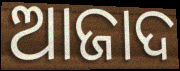
ଆଜାଦ